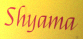
Shyama